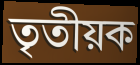
তৃতীয়ক